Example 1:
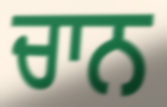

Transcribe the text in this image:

ਚਾਨ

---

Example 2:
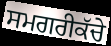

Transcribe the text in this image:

ਸਮਗਰੀਕੱਚੇ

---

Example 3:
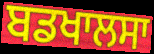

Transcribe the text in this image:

ਬਡਖਾਲਸਾ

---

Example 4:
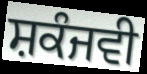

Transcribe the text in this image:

ਸ਼ਕੰਜਵੀ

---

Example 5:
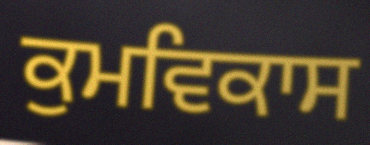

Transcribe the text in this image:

ਕੁਮਵਿਕਾਸ